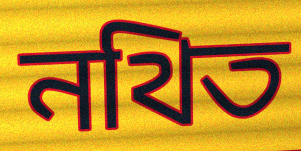
নথিত